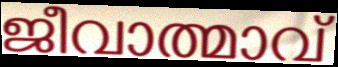
ജീവാത്മാവ്